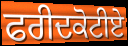
ਫਰੀਦਕੋਟੀਏ